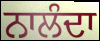
ਨਾਲੰਦਾ